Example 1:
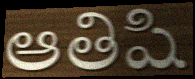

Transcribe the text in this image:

ఆతిషి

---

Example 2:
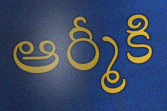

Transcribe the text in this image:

ఆర్మీకి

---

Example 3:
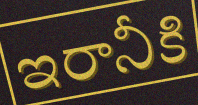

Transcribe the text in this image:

ఇరానీకి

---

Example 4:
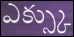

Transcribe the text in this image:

ఎక్స్కు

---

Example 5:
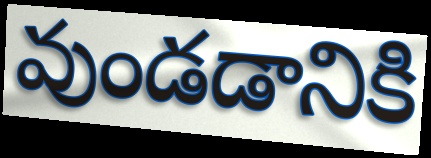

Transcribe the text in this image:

వుండడానికి